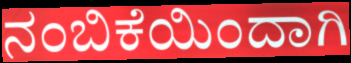
ನಂಬಿಕೆಯಿಂದಾಗಿ